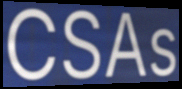
CSAs